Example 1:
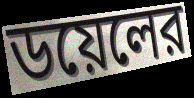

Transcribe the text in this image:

ডয়েলের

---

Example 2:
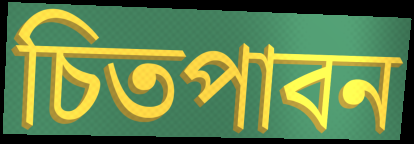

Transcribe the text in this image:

চিতপাবন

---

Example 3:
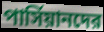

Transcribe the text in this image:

পার্সিয়ানদের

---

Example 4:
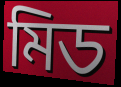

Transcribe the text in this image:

মিড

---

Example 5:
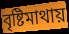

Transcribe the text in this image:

বৃষ্টিমাথায়